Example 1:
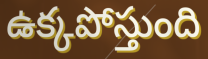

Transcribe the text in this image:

ఉక్కపోస్తుంది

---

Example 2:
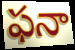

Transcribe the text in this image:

ఫనా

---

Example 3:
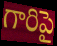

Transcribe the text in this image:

గారిపై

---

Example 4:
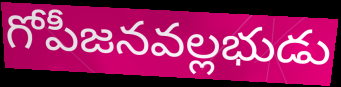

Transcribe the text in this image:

గోపీజనవల్లభుడు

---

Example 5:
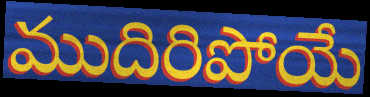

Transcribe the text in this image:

ముదిరిపోయే